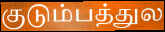
குடும்பத்துல